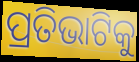
ପ୍ରତିଭାଟିକୁ